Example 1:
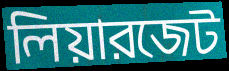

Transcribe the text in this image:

লিয়ারজেট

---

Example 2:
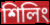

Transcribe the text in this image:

শিলিং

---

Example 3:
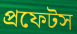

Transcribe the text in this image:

প্রফেটস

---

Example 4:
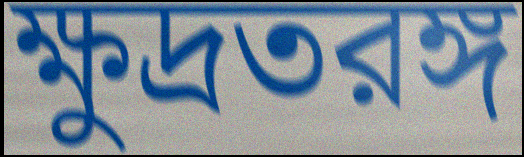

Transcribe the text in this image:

ক্ষুদ্রতরঙ্গ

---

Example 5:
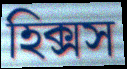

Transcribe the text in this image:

হিক্সস